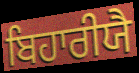
ਬਿਹਾਰੀਯੈ